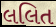
લલિત